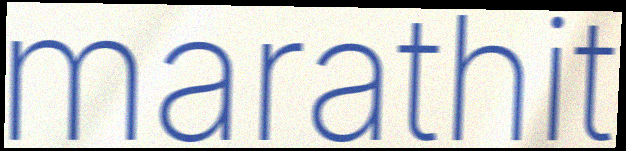
marathit